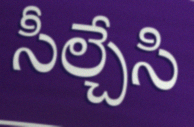
సీల్చేసి